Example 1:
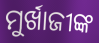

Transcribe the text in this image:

ମୁର୍ଖାଜୀଙ୍କ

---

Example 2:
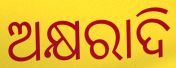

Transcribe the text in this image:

ଅକ୍ଷରାଦି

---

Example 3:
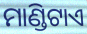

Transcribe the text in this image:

ମାଣ୍ଡିଟାଏ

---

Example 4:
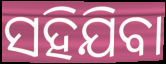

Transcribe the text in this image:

ସହିଯିବା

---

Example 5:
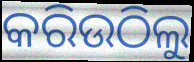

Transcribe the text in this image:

କରିଉଠିଲୁ